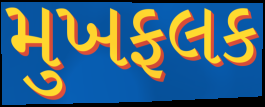
મુખફલક